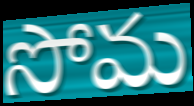
సోమ